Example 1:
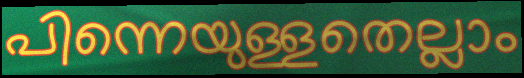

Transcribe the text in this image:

പിന്നെയുള്ളതെല്ലാം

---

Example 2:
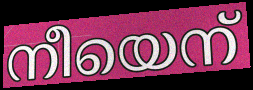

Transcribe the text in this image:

നീയെന്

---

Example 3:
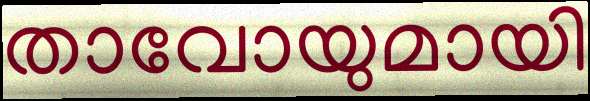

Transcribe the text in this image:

താവോയുമായി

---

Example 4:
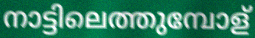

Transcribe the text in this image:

നാട്ടിലെത്തുമ്പോള്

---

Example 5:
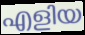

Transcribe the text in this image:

എളിയ